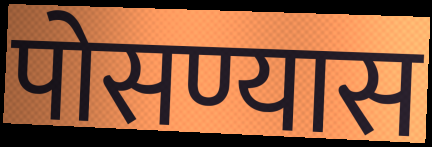
पोसण्यास